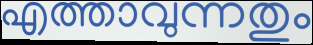
എത്താവുന്നതും